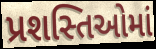
પ્રશસ્તિઓમાં